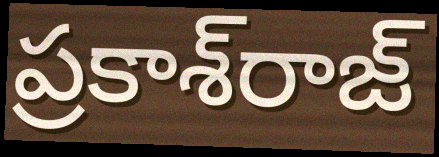
ప్రకాశ్‌రాజ్